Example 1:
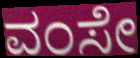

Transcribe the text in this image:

ವಂಸೇ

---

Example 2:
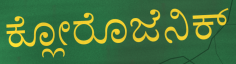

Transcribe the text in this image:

ಕ್ಲೋರೊಜೆನಿಕ್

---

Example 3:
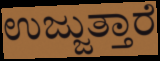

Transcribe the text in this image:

ಉಜ್ಜುತ್ತಾರೆ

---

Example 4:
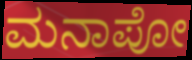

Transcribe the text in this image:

ಮನಾಪೋ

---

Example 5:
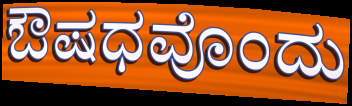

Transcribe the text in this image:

ಔಷಧವೊಂದು